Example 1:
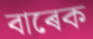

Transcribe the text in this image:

বাৰেক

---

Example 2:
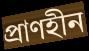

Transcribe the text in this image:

প্ৰাণহীন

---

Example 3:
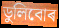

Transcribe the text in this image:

ডুলিবোৰ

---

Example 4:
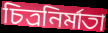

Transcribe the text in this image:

চিত্ৰনিৰ্মাতা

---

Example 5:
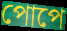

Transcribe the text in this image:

পোপে